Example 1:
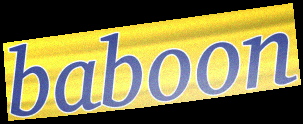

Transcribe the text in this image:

baboon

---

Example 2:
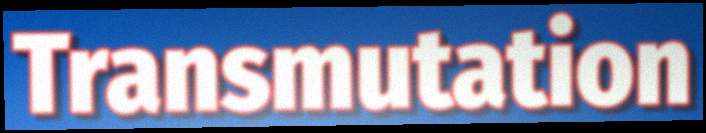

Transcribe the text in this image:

Transmutation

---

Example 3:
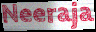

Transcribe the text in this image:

Neeraja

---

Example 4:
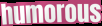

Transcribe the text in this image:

humorous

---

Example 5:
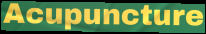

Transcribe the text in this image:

Acupuncture